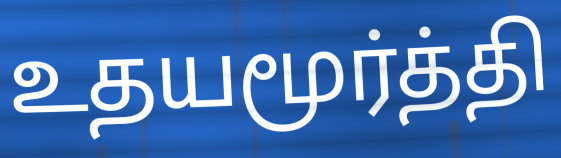
உதயமூர்த்தி